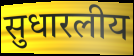
सुधारलीय